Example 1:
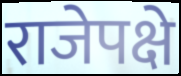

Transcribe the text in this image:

राजेपक्षे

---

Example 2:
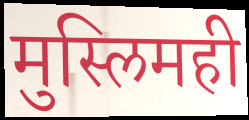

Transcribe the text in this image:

मुस्लिमही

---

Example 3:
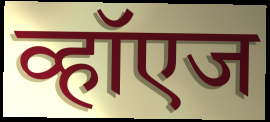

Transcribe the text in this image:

व्हॉएज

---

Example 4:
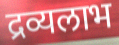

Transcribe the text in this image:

द्रव्यलाभ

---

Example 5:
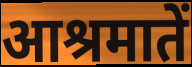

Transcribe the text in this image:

आश्रमातें